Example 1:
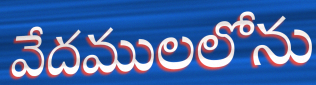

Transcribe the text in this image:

వేదములలోను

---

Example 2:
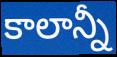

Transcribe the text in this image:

కాలాన్నీ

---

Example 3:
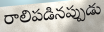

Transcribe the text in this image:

రాలిపడినప్పుడు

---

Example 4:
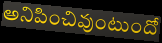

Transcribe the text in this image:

అనిపించివుంటుందో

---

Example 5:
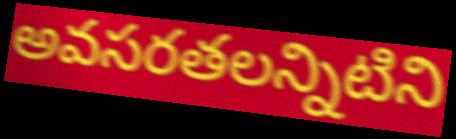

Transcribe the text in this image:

అవసరతలన్నిటిని